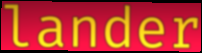
lander